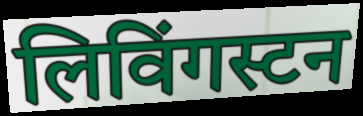
लिविंगस्टन